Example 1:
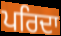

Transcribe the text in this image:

ਪਰਿਦਾ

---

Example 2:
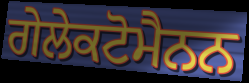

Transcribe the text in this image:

ਗੇਲੇਕਟੋਮੈਨਨ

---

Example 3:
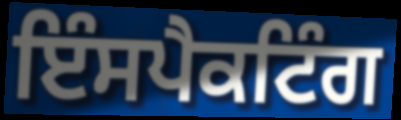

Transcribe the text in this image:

ਇੰਸਪੈਕਟਿੰਗ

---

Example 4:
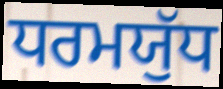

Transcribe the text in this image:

ਧਰਮਯੁੱਧ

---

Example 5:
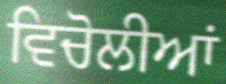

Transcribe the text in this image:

ਵਿਚੋਲੀਆਂ